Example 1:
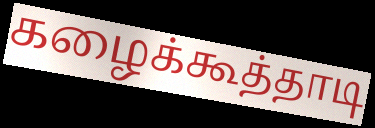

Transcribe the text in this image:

கழைக்கூத்தாடி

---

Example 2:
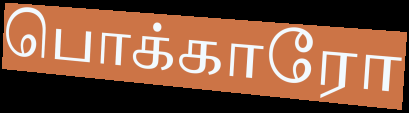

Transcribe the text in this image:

பொக்காரோ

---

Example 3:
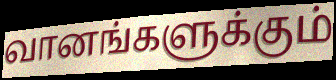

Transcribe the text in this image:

வானங்களுக்கும்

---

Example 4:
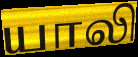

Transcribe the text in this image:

யாலி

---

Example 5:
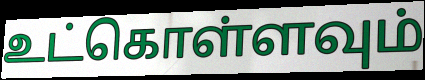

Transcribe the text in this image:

உட்கொள்ளவும்